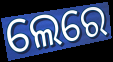
ଲେରେ